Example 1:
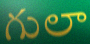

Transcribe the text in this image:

గులా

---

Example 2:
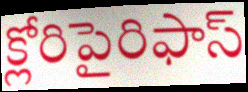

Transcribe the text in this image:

క్లోరిపైరిఫాస్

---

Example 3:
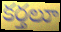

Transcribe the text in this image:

కర్తలూ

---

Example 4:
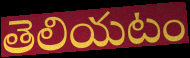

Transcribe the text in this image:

తెలియటం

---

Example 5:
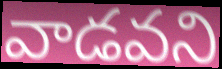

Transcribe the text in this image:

వాడవని